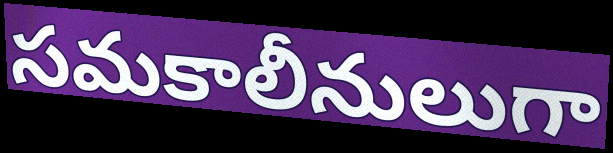
సమకాలీనులుగా